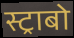
स्ट्राबो